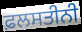
ਫ਼ਲਸਤੀਨੀ